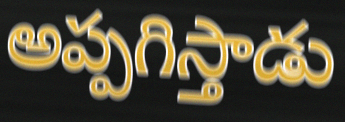
అప్పగిస్తాడు